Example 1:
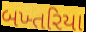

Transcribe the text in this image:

બખ્તરિયા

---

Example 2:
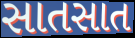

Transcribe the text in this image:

સાતસાત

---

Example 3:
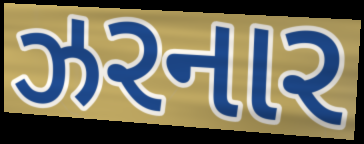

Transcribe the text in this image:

ઝરનાર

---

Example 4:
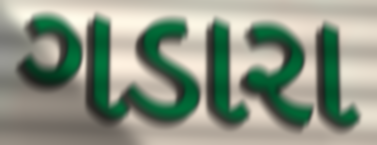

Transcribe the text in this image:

ગડારા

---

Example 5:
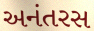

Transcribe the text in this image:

અનંતરસ